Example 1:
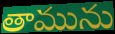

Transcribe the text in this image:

తామును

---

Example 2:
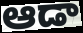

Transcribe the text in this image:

ఆడా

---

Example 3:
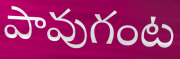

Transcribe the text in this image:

పావుగంట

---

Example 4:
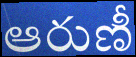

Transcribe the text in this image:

ఆరుణీ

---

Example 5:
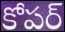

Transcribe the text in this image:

కోపర్